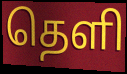
தெளி